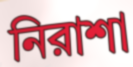
নিরাশা